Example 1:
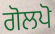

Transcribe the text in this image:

ਗੋਲਪੋ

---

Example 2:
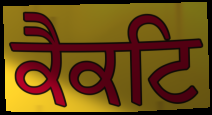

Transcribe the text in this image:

ਕੈਕਟਿ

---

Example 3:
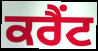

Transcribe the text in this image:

ਕਰੈਂਟ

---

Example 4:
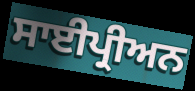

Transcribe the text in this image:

ਸਾਈਪ੍ਰੀਅਨ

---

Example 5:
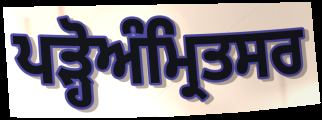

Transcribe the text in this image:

ਪੜ੍ਹੋਅੰਮ੍ਰਿਤਸਰ